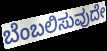
ಬೆಂಬಲಿಸುವುದೇ